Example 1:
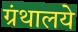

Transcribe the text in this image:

ग्रंथालये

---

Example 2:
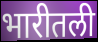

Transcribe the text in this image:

भारीतली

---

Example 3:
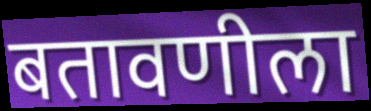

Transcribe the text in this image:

बतावणीला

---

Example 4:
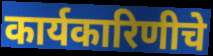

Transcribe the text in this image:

कार्यकारिणीचे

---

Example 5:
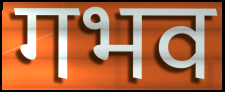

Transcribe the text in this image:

गभव